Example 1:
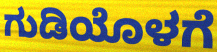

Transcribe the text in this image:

ಗುಡಿಯೊಳಗೆ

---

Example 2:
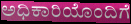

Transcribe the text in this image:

ಅಧಿಕಾರಿಯೊಂದಿಗೆ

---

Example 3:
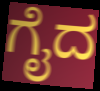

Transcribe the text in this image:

ಗೈದ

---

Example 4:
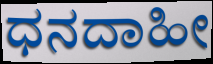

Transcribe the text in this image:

ಧನದಾಹೀ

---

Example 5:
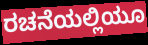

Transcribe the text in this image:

ರಚನೆಯಲ್ಲಿಯೂ